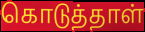
கொடுத்தாள்